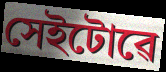
সেইটোৱে